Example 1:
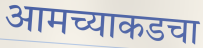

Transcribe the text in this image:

आमच्याकडचा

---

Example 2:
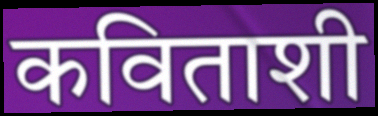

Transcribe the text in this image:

कविताशी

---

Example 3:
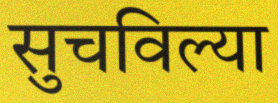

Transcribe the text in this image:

सुचविल्या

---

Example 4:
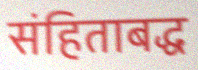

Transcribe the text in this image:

संहिताबद्ध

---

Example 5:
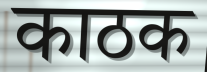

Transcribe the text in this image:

काठक